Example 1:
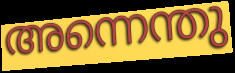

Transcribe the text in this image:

അന്നെന്തു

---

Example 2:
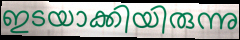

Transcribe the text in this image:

ഇടയാക്കിയിരുന്നു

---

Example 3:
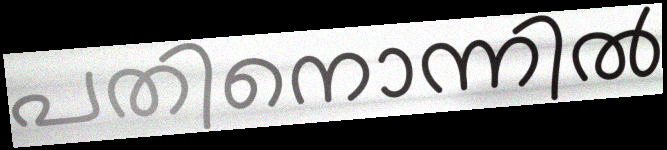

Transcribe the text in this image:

പതിനൊന്നിൽ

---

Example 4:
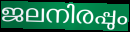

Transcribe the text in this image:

ജലനിരപ്പും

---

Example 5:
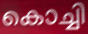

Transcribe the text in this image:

കൊച്ചി